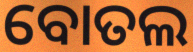
ବୋତଲ